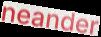
neander